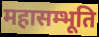
महासम्भूति